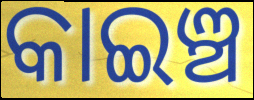
କାଇଞ୍ଚ